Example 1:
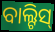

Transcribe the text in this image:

ବାଲ୍ଟିସ୍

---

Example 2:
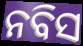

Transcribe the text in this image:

ନବିସ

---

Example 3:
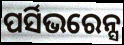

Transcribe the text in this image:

ପର୍ସିଭରେନ୍ସ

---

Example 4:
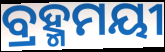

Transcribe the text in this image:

ବ୍ରହ୍ମମୟୀ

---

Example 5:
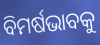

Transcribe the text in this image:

ବିମର୍ଷଭାବକୁ